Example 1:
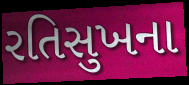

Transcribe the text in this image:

રતિસુખના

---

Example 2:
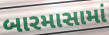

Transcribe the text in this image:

બારમાસામાં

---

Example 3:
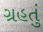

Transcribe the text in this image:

ગ્રહતું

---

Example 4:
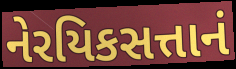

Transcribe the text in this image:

નેરયિકસત્તાનં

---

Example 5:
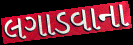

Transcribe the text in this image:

લગાડવાના